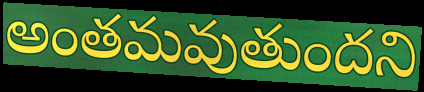
అంతమవుతుందని